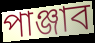
পাঞ্জাব